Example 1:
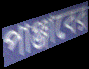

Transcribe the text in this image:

পাঞ্জাবের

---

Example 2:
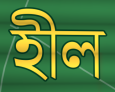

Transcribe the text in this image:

হীল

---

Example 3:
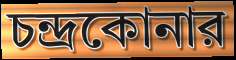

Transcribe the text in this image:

চন্দ্রকোনার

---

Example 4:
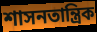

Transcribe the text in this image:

শাসনতান্ত্রিক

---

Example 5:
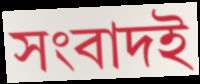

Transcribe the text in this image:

সংবাদই